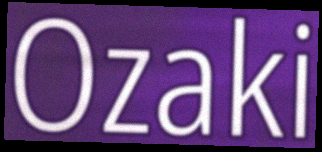
Ozaki